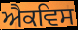
ਐਕਵਿਸ